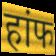
हांफ